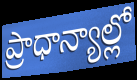
ప్రాధాన్యాల్లో